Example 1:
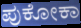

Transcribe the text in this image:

ಪುಕೋಕಾ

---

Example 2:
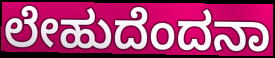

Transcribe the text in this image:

ಲೇಹುದೆಂದನಾ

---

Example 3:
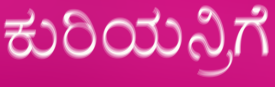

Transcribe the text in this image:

ಕುರಿಯನ್ರಿಗೆ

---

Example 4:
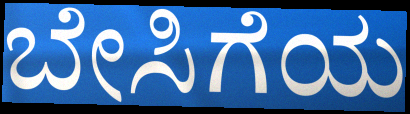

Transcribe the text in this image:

ಬೇಸಿಗೆಯ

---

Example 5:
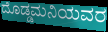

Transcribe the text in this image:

ದೊಡ್ಡಮನಿಯವರ